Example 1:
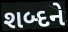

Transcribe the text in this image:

શબ્દને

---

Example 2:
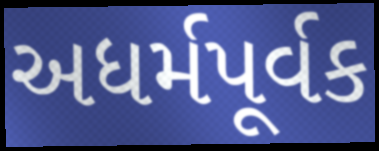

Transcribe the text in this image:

અધર્મપૂર્વક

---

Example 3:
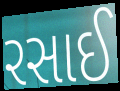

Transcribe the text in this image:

રસાઈ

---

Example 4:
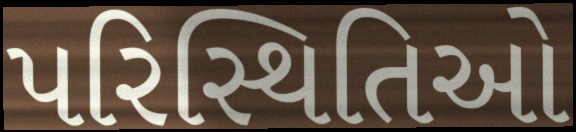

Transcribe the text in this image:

પરિસ્થિતિઓ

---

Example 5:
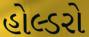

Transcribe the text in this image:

હોલ્ડરો